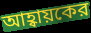
আহ্বায়কের